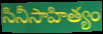
సినీసాహిత్యం